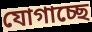
যোগাচ্ছে